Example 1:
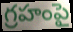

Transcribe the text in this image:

గ్రహంపై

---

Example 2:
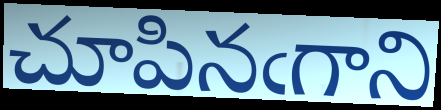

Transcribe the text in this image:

చూపినఁగాని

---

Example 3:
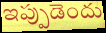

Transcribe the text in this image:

ఇప్పుడెందు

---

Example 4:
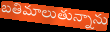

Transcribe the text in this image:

బతిమాలుతున్నాను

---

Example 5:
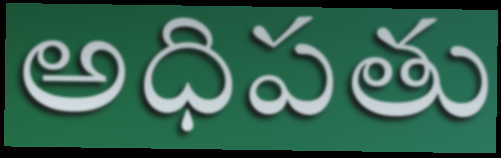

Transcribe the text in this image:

అధిపతు